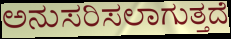
ಅನುಸರಿಸಲಾಗುತ್ತದೆ